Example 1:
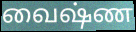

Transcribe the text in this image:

வைஷ்ண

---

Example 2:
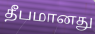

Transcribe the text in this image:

தீபமானது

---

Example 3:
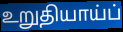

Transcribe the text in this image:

உறுதியாய்ப்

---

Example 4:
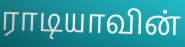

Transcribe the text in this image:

ராடியாவின்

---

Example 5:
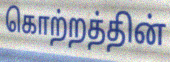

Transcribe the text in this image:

கொற்றத்தின்